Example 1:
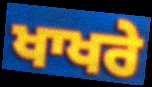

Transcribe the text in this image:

ਖਾਖਰੇ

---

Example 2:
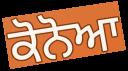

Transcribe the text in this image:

ਕੋਨੋਆ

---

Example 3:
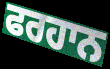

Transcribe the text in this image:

ਫਰਹਾਨ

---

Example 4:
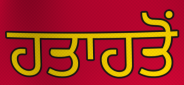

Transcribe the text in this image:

ਹਤਾਹਤੋਂ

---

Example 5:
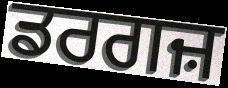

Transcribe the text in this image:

ਡਰਗਜ਼